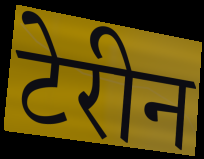
टेरीन